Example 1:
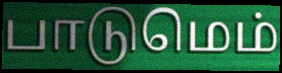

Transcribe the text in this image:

பாடுமெம்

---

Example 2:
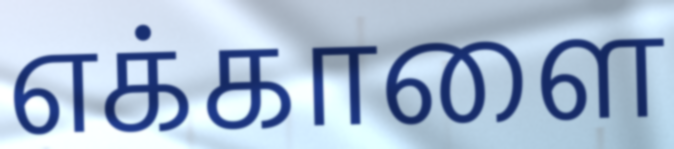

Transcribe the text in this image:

எக்காளை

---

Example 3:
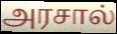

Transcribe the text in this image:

அரசால்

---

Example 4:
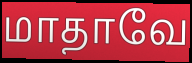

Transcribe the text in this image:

மாதாவே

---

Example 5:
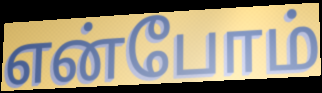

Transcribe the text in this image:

என்போம்